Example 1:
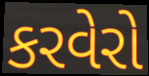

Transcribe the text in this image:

કરવેરો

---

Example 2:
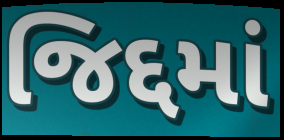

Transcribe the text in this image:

જિદ્દમાં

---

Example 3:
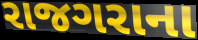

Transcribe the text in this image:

રાજગરાના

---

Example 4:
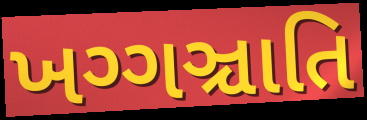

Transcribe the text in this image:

ખગ્ગઞ્ચાતિ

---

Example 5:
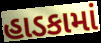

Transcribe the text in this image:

હાડકામાં